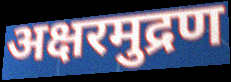
अक्षरमुद्रण